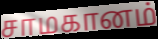
சாமகானம்